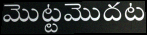
మొట్టమొదట